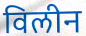
विलीन